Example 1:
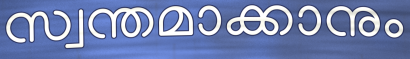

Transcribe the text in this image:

സ്വന്തമാക്കാനും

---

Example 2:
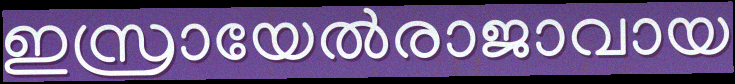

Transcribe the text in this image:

ഇസ്രായേൽരാജാവായ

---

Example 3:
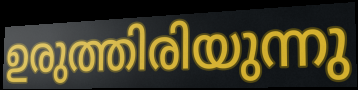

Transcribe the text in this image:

ഉരുത്തിരിയുന്നു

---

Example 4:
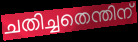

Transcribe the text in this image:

ചതിച്ചതെന്തിന്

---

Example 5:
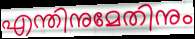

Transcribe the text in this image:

എന്തിനുമേതിനും